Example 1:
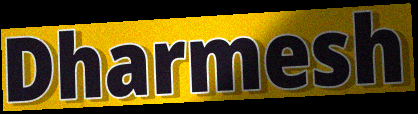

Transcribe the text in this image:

Dharmesh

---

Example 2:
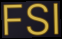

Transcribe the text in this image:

FSI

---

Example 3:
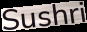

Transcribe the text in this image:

Sushri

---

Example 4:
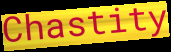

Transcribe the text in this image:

Chastity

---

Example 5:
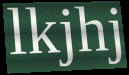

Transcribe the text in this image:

lkjhj